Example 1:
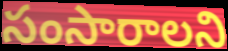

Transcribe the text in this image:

సంసారాలని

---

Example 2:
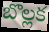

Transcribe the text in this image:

బొల్లక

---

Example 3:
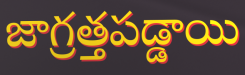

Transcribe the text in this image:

జాగ్రత్తపడ్డాయి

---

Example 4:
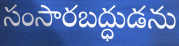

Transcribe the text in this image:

సంసారబద్ధుడను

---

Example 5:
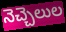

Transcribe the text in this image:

నెచ్చెలుల